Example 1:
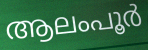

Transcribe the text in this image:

ആലംപൂർ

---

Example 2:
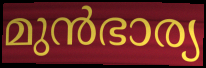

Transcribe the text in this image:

മുൻഭാര്യ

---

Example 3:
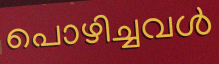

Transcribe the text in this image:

പൊഴിച്ചവൾ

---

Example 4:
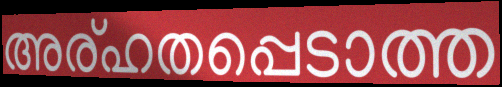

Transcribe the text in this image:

അര്ഹതപ്പെടാത്ത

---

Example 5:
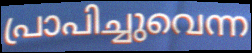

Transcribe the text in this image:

പ്രാപിച്ചുവെന്ന